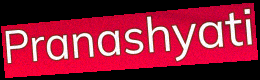
Pranashyati